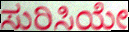
ಸುರಿಸಿಯೇ